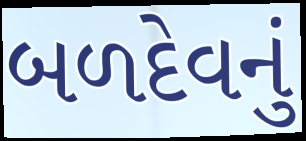
બળદેવનું